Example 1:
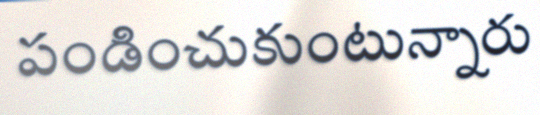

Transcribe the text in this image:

పండించుకుంటున్నారు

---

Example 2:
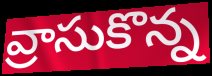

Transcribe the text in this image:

వ్రాసుకొన్న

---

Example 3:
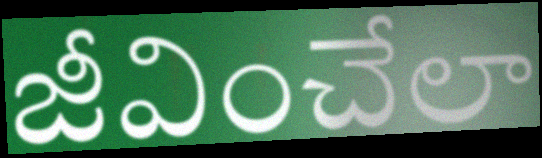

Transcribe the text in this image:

జీవించేలా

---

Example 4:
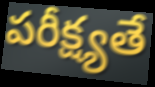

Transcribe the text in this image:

పరీక్ష్యతే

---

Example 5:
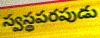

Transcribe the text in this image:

స్వస్థపరపుడు